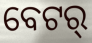
ବେଟର୍